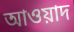
আওয়াদ